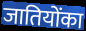
जातियोंका